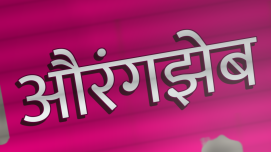
औरंगझेब